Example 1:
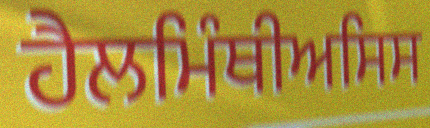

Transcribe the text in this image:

ਹੈਲਮਿੰਥੀਅਸਿਸ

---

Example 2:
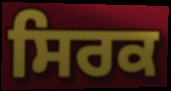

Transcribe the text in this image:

ਸਿਰਕ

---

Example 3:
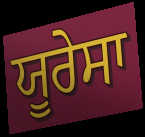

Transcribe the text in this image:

ਯੂਰੇਸਾ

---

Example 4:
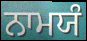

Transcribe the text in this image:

ਨਾਮਯੰ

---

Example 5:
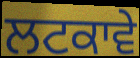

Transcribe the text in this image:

ਲਟਕਾਵੇ